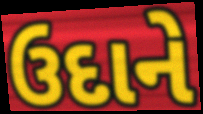
ઉદાને